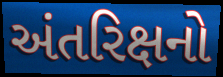
અંતરિક્ષનો